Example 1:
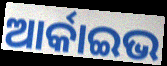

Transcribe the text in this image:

ଆର୍କାଇଭ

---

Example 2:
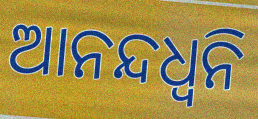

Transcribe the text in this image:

ଆନନ୍ଦଧ୍ଵନି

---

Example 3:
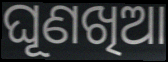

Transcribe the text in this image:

ଘୂଣଖିଆ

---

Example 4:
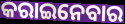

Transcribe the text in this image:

କରାଇନେବାର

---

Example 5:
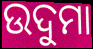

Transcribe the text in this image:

ଉଦୁମା